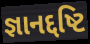
જ્ઞાનદ્દષ્ટિ